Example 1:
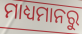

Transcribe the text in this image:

ମାଧ୍ୟମାନରୁ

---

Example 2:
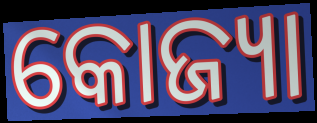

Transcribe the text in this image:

କୋଜ୍ୟା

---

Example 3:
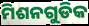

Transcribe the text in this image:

ମିଶନଗୁଡିକ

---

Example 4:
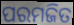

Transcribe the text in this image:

ପରମଜିତ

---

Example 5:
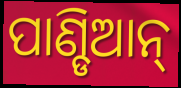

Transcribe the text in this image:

ପାଣ୍ଡିଆନ୍